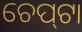
ଚେପ୍‍ଟା